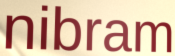
nibram